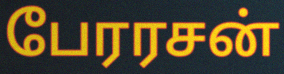
பேரரசன்